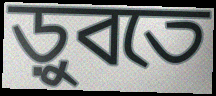
ড়ুবতে